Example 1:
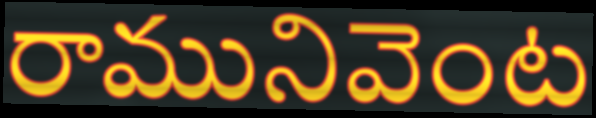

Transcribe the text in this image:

రామునివెంట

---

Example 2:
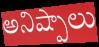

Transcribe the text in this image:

అనిష్పాలు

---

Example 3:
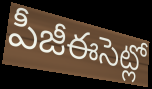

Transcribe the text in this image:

పీజీఈసెట్లో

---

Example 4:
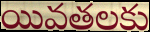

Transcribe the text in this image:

యివతలకు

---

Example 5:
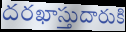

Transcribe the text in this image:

దరఖాస్తుదారుకి